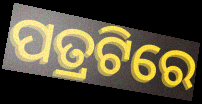
ପତ୍ରଟିରେ